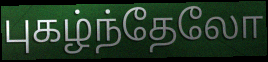
புகழ்ந்தேலோ